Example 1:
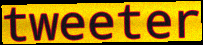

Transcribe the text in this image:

tweeter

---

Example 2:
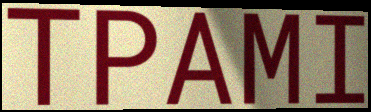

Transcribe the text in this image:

TPAMI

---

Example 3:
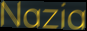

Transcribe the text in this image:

Nazia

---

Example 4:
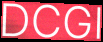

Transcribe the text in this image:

DCGI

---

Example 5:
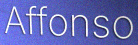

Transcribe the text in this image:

Affonso